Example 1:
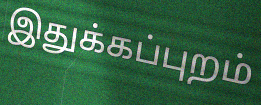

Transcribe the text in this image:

இதுக்கப்புறம்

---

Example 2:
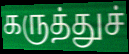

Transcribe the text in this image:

கருத்துச்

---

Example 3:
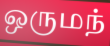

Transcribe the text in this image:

ஒருமந்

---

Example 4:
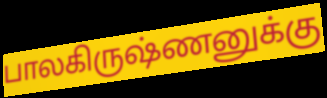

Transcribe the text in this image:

பாலகிருஷ்ணனுக்கு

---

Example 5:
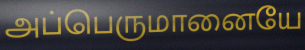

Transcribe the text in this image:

அப்பெருமானையே